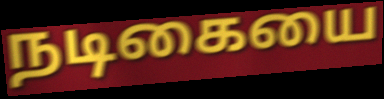
நடிகையை